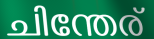
ചിന്തേര്